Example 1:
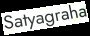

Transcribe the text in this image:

Satyagraha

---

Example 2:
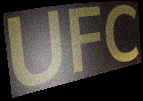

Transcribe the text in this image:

UFC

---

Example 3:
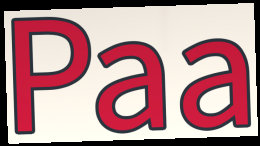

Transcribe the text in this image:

Paa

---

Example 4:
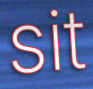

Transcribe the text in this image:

sit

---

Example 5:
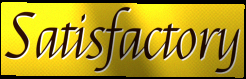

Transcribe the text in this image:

Satisfactory